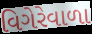
વિગેરેવાળા